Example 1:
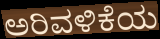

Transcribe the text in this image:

ಅರಿವಳಿಕೆಯ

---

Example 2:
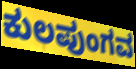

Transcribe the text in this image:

ಕುಲಪುಂಗವ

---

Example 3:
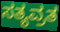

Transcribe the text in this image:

ಸತ್ಯವ್ರತ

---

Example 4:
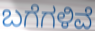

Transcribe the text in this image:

ಬಗೆಗಳಿವೆ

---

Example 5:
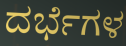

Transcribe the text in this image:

ದರ್ಭೆಗಳ